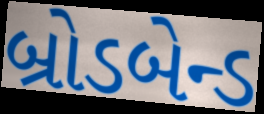
બ્રોડબેન્ડ